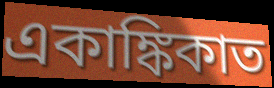
একাঙ্কিকাত